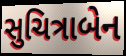
સુચિત્રાબેન